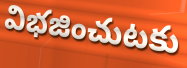
విభజించుటకు